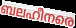
ബലഹീനരെ